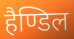
हैण्डिल